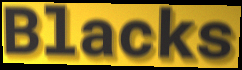
Blacks